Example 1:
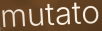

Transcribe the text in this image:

mutato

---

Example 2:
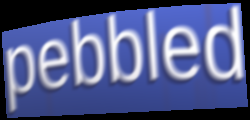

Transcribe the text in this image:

pebbled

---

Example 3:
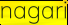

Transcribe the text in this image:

nagari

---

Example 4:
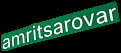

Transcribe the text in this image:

amritsarovar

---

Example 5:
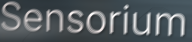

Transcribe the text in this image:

Sensorium